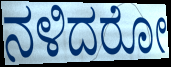
ನಳಿದರೋ